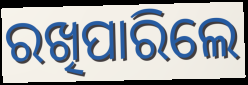
ରଖିପାରିଲେ